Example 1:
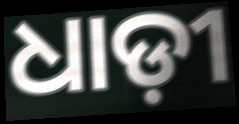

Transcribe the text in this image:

ଧାଡ଼ୀ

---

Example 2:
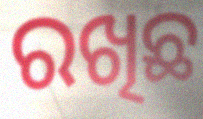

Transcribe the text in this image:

ରଖିଛ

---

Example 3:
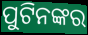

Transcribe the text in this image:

ପୁଟିନଙ୍କର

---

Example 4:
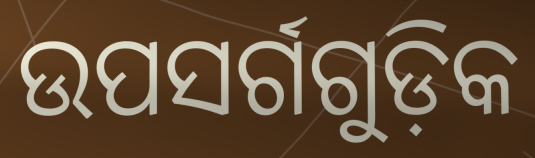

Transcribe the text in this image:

ଉପସର୍ଗଗୁଡ଼ିକ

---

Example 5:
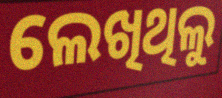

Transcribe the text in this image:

ଲେଖିଥିଲୁ